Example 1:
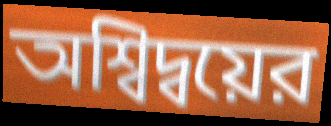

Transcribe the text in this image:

অশ্বিদ্বয়ের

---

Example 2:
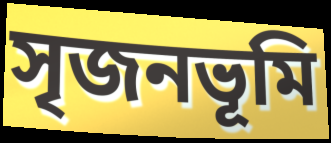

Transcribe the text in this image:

সৃজনভূমি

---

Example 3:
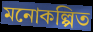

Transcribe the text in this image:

মনোকল্পিত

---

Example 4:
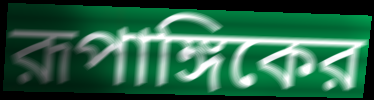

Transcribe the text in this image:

রূপাঙ্গিকের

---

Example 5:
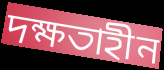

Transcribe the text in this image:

দক্ষতাহীন